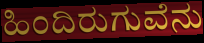
ಹಿಂದಿರುಗುವೆನು